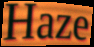
Haze